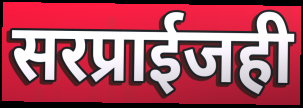
सरप्राईजही